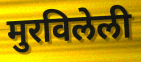
मुरविलेली